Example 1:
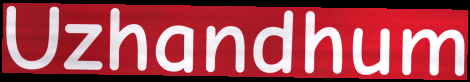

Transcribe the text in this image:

Uzhandhum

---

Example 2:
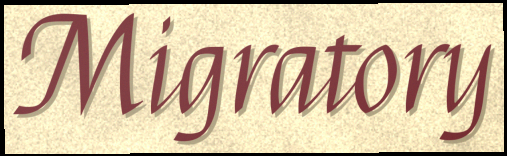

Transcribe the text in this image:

Migratory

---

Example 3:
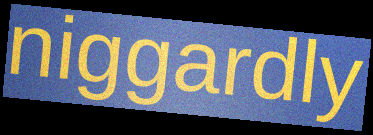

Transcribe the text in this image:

niggardly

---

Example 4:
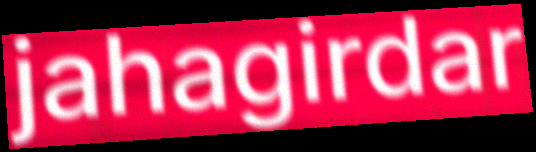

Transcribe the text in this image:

jahagirdar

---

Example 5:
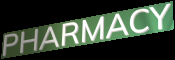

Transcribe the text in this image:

PHARMACY